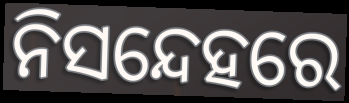
ନିସନ୍ଦେହରେ